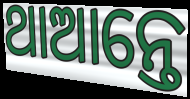
ଥାଆନ୍ତେ